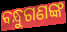
ବନ୍ଧୁଗଣଙ୍କ